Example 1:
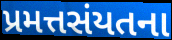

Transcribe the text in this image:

પ્રમત્તસંયતના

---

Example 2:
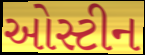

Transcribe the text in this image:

ઓસ્ટીન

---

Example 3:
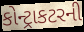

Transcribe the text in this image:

કોન્ટ્રાકટરની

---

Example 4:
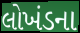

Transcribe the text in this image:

લોખંડના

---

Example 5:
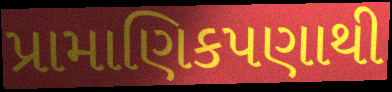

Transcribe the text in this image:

પ્રામાણિકપણાથી